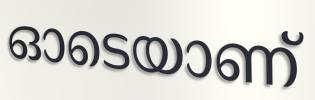
ഓടെയാണ്